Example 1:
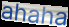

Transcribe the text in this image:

ahaha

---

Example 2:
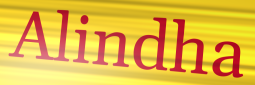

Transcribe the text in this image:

Alindha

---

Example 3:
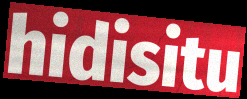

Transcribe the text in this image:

hidisitu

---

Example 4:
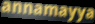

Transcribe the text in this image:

annamayya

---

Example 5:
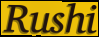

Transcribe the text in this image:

Rushi